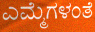
ಎಮ್ಮೆಗಳಂತೆ